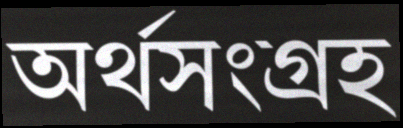
অর্থসংগ্রহ